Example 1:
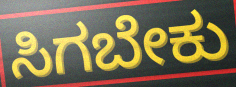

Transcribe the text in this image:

ಸಿಗಬೇಕು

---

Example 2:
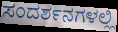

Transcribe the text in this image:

ಸಂದರ್ಶನಗಳಲ್ಲಿ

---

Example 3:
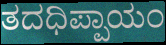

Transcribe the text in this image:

ತದಧಿಪ್ಪಾಯಂ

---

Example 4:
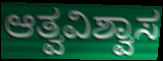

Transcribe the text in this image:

ಆತ್ವವಿಶ್ವಾಸ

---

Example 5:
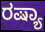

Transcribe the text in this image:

ರಷ್ಯಾ